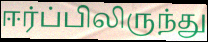
ஈர்ப்பிலிருந்து